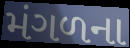
મંગળના